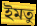
ইমতু